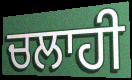
ਚਲਾਹੀ